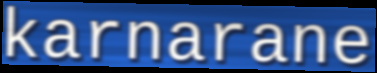
karnarane